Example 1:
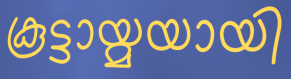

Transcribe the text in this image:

കൂട്ടായ്മയായി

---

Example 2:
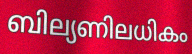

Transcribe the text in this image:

ബില്യണിലധികം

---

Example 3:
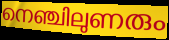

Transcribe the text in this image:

നെഞ്ചിലുണരും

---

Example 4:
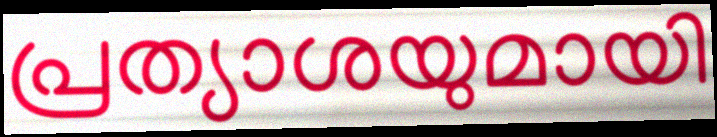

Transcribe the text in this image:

പ്രത്യാശയുമായി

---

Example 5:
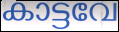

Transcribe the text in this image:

കാട്ടവേ